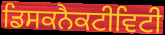
ਡਿਸਕਨੈਕਟੀਵਿਟੀ